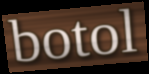
botol